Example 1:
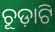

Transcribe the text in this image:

ଚୂଡ଼ାଟି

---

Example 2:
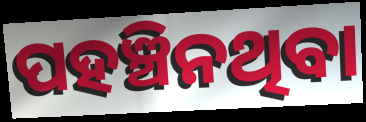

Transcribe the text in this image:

ପହଞ୍ଚିନଥିବା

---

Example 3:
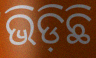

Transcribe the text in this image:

ଭିଡ଼ିଛି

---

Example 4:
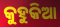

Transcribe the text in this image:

କୁହୁକିଆ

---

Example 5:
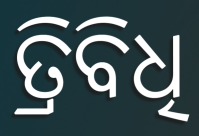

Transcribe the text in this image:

ତ୍ରିବିଧି